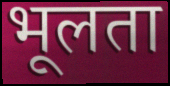
भूलता